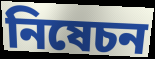
নিষেচন